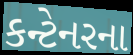
કન્ટેનરના